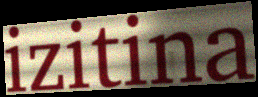
izitina